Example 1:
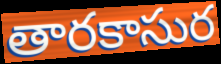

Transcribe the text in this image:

తారకాసుర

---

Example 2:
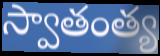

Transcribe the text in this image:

స్వాతంత్య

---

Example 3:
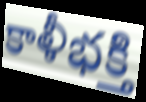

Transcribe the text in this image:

కాళీభక్తి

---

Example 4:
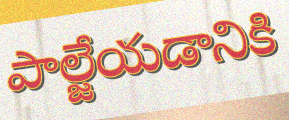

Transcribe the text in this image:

పాల్జేయడానికి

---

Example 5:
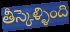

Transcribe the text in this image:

తీస్కెళ్ళింది